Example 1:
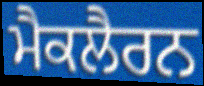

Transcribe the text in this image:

ਮੈਕਲੈਰਨ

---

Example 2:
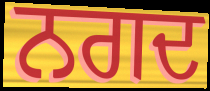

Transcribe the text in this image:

ਨਗਦ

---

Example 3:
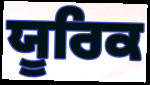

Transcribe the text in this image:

ਯੂਰਿਕ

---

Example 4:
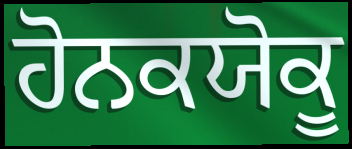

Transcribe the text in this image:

ਹੋਨਕਯੋਕੂ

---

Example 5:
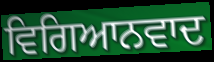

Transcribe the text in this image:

ਵਿਗਿਆਨਵਾਦ